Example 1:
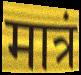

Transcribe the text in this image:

मात्रं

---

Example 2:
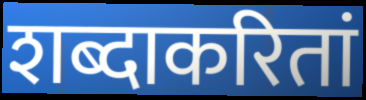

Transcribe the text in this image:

शब्दाकरितां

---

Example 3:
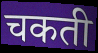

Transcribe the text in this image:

चकती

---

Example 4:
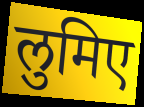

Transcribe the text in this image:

लुमिए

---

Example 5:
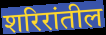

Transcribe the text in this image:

शरिरांतील